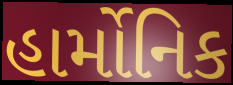
હાર્મોનિક